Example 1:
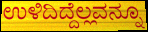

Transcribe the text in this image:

ಉಳಿದಿದ್ದೆಲ್ಲವನ್ನೂ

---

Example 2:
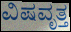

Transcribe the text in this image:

ವಿಷವೃತ್ತ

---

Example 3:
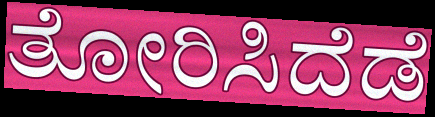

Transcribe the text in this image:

ತೋರಿಸಿದೆಡೆ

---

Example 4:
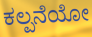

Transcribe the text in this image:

ಕಲ್ಪನೆಯೋ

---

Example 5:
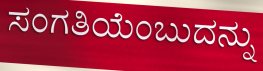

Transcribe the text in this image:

ಸಂಗತಿಯೆಂಬುದನ್ನು